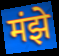
मंझे